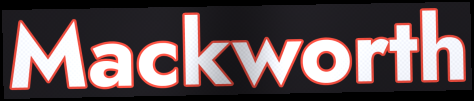
Mackworth